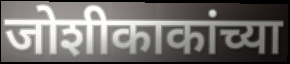
जोशीकाकांच्या